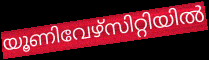
യൂണിവേഴ്സിറ്റിയിൽ